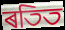
ৰতিত